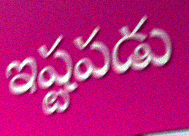
ఇష్టపడు